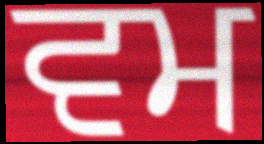
ਵਮ